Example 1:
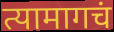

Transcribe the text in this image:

त्यामागचं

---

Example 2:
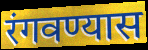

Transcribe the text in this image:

रंगवण्यास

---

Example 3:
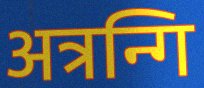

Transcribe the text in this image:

अत्रन्गि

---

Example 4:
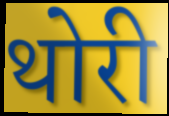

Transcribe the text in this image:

थोरी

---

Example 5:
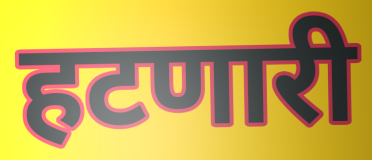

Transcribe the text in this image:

हटणारी